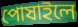
পোষাইলে